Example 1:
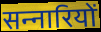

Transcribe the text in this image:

सन्नारियों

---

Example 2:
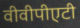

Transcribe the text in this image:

वीवीपीएटी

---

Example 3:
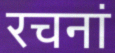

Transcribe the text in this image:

रचनां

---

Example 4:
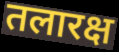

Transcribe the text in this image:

तलारक्ष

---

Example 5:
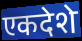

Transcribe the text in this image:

एकदेशे